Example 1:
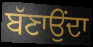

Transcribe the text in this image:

ਬੱਣਾਉਂਦਾ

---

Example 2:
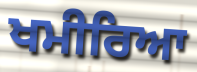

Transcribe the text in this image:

ਖਮੀਰਿਆ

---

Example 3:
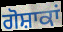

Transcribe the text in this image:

ਗੋਸ਼ਾਕਾਂ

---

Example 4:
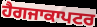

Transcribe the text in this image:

ਹੈਗਜਾਕਾਪਟਰ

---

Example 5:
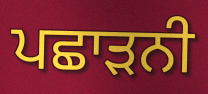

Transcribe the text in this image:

ਪਛਾੜਨੀ